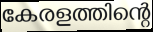
കേരളത്തിന്റെ